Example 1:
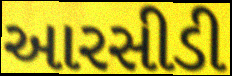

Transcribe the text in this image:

આરસીડી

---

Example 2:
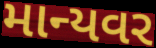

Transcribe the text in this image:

માન્યવર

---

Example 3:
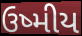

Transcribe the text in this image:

ઉષ્મીય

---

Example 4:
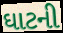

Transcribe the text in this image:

ઘાટની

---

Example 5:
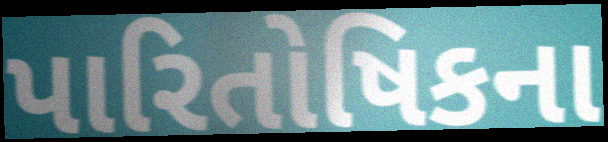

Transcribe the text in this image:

પારિતોષિકના